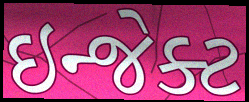
ઇન્જેક્ટ